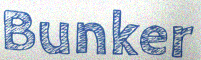
Bunker